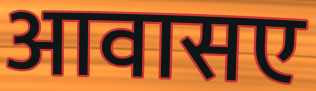
आवासए